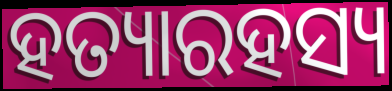
ହତ୍ୟାରହସ୍ୟ